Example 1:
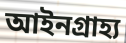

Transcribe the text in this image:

আইনগ্রাহ্য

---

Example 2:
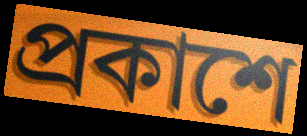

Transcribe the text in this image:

প্রকাশে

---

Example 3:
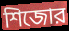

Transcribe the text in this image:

শিজোর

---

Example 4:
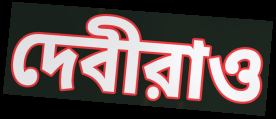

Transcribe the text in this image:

দেবীরাও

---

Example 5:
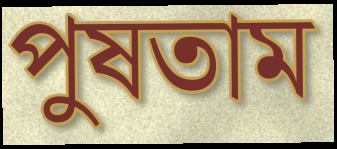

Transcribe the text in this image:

পুষতাম